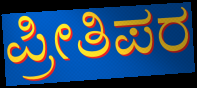
ಪ್ರೀತಿಪರ